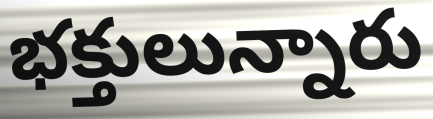
భక్తులున్నారు